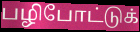
பழிபோட்டுக்